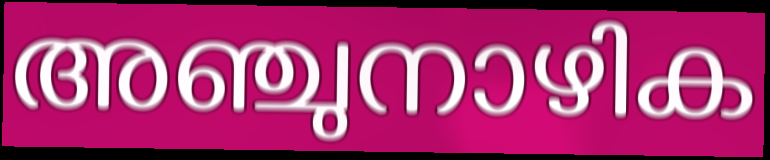
അഞ്ചുനാഴിക